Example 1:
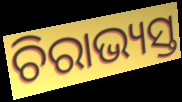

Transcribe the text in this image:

ଚିରାଭ୍ୟସ୍ତ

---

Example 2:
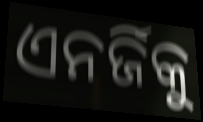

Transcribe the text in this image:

ଏନର୍ଜିକୁ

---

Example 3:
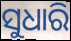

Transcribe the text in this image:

ସୁଧାରି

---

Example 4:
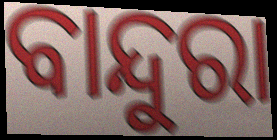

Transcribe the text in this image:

ବାନ୍ଦୁରା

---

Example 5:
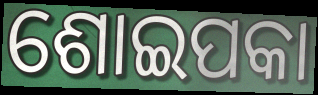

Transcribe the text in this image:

ଶୋଇପକା